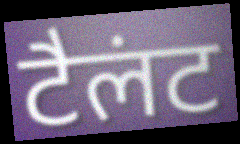
टैलंट